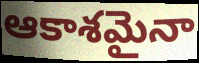
ఆకాశమైనా